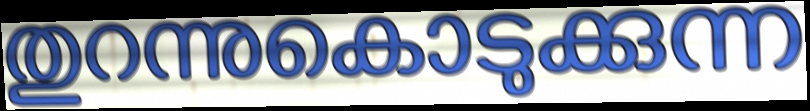
തുറന്നുകൊടുക്കുന്ന